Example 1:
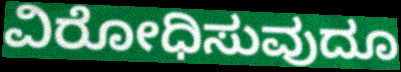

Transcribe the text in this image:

ವಿರೋಧಿಸುವುದೂ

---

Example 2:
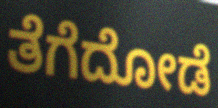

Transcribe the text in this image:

ತೆಗೆದೋಡೆ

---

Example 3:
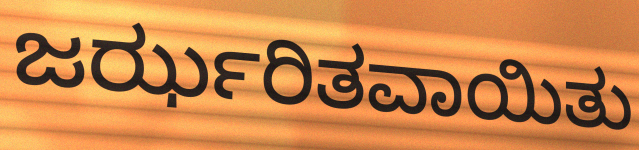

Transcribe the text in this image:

ಜರ್ಝರಿತವಾಯಿತು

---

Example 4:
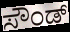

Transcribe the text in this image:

ಸೌಂಡ್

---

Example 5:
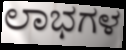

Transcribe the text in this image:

ಲಾಭಗಳ